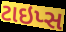
ટાઇપ્સ